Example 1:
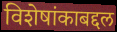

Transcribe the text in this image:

विशेषांकाबद्दल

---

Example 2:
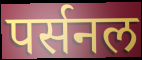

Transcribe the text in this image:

पर्सनल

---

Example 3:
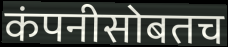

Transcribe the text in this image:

कंपनीसोबतच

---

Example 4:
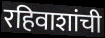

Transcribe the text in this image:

रहिवाशांची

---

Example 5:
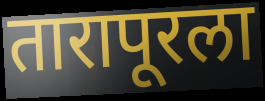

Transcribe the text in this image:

तारापूरला